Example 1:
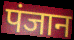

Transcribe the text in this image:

पंजान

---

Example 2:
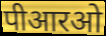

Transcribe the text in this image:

पीआरओ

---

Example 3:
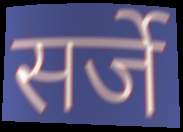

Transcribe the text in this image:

सर्जे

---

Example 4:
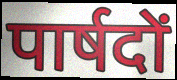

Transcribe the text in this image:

पार्षदों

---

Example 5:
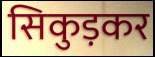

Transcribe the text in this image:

सिकुड़कर